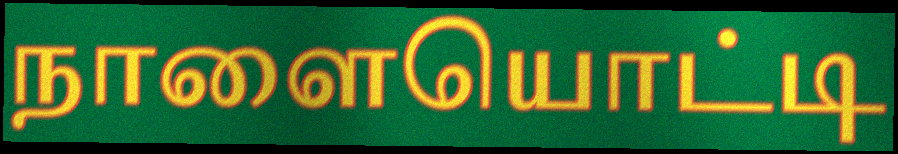
நாளையொட்டி